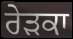
ਰੇੜਕਾ